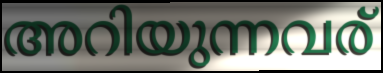
അറിയുന്നവര്